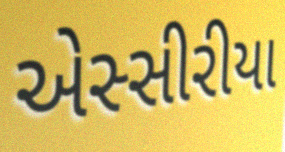
એસ્સીરીયા